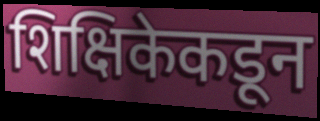
शिक्षिकेकडून